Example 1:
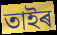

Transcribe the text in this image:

তাইৰ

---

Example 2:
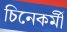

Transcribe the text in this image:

চিনেকৰ্মী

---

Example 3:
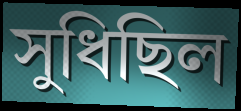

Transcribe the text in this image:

সুধিছিল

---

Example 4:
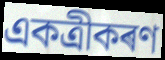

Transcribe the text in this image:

একত্ৰীকৰণ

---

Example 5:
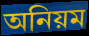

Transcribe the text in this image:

অনিয়ম